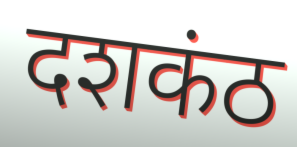
दशकंठ